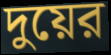
দুয়ের